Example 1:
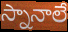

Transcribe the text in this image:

స్నానాలే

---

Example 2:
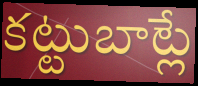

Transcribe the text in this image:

కట్టుబాట్లే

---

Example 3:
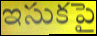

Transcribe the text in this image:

ఇసుకపై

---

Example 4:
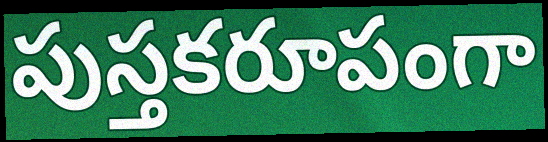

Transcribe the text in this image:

పుస్తకరూపంగా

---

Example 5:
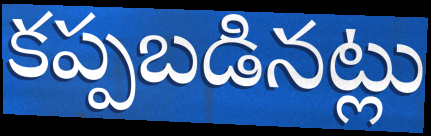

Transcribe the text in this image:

కప్పబడినట్లు